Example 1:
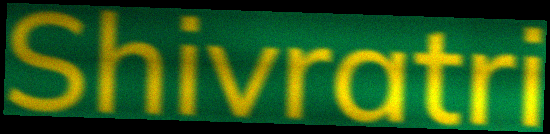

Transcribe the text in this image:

Shivratri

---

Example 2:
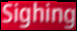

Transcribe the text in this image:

Sighing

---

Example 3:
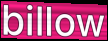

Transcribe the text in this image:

billow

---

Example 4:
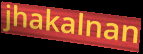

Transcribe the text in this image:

jhakalnan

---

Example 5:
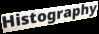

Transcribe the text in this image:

Histography